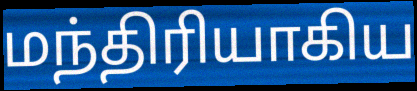
மந்திரியாகிய